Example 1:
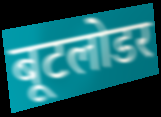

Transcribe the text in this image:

बूटलोडर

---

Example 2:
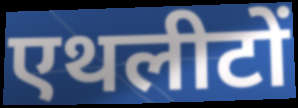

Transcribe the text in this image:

एथलीटों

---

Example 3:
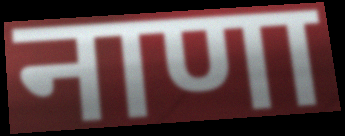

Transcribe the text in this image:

नाणा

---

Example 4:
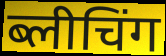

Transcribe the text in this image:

ब्लीचिंग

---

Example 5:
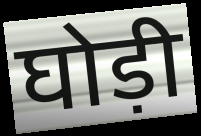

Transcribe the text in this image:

घोड़ी